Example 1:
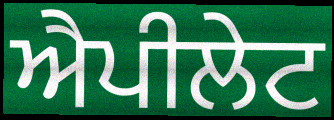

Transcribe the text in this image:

ਐਪੀਲੇਟ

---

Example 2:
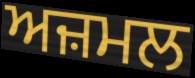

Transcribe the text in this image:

ਅਜ਼ਮਲ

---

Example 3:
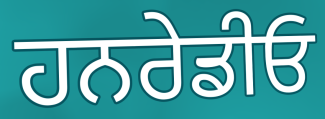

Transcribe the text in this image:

ਹਨਰੇਡੀਓ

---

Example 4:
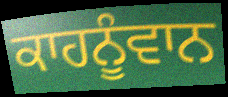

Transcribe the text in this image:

ਕਾਹਨੂੰਵਾਨ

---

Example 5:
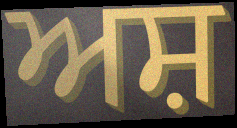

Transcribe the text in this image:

ਅਸ਼